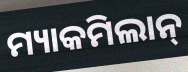
ମ୍ୟାକମିଲାନ୍